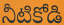
నీటికోడి